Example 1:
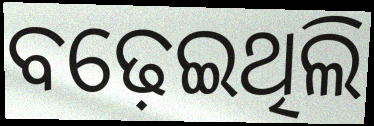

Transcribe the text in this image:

ବଢ଼େଇଥିଲି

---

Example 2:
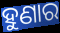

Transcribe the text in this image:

ହୁଣାର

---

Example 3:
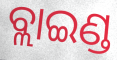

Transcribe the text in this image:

ବ୍ଲାଇଣ୍ଡ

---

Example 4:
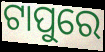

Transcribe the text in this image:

ଟାପୁରେ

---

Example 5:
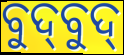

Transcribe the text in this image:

ବୁଦ୍‍ବୁଦ୍